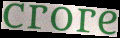
crore